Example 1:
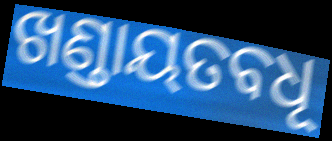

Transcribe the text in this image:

ଖଣ୍ଡାୟତବଧୂ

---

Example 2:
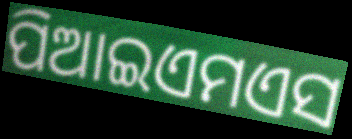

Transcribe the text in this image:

ପିଆଇଏମଏସ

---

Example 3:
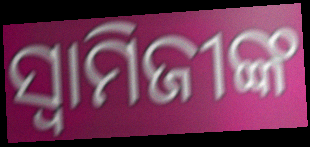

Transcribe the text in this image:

ସ୍ବାମିଜୀଙ୍କ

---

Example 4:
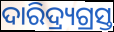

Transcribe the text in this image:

ଦାରିଦ୍ର୍ୟଗ୍ରସ୍ତ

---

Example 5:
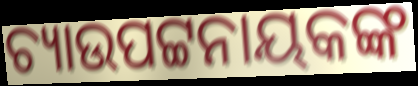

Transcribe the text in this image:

ଚ୍ୟାଉପଟ୍ଟନାୟକଙ୍କ